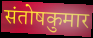
संतोषकुमार